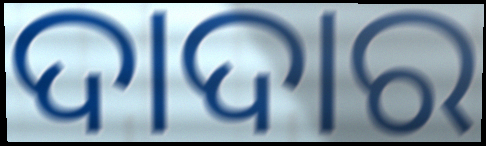
ଦାଦାର